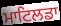
ਮਾਟਿਲਡਾ